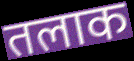
तलाक